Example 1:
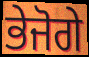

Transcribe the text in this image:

ਭੇਜੋਗੇ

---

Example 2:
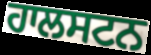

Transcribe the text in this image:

ਹਾਲਸਟਨ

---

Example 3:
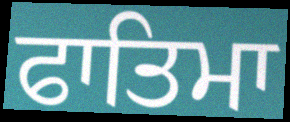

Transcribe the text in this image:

ਫਾਤਿਮਾ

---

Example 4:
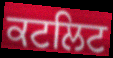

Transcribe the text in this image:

ਕਟਲਿਟ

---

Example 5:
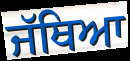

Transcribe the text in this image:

ਜੱਥਿਆ